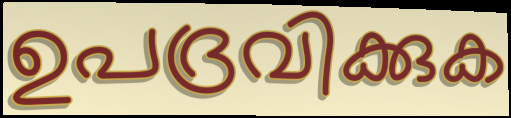
ഉപദ്രവിക്കുക